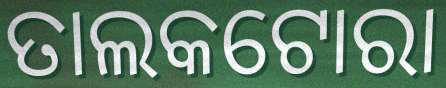
ତାଲକଟୋରା